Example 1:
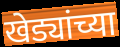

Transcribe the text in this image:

खेड्यांच्या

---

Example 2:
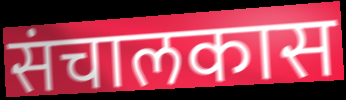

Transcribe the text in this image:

संचालकास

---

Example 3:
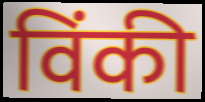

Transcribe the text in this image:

विंकी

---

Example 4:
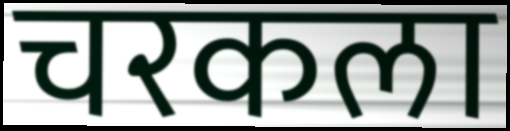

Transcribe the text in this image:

चरकला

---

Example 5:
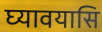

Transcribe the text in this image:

घ्यावयासि